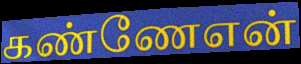
கண்ணேஎன்